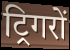
ट्रिगरों